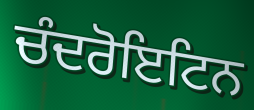
ਚੰਦਰੋਇਟਿਨ